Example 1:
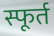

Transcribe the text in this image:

स्फूर्त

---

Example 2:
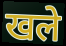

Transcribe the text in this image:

खले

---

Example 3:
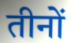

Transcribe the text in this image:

तीनों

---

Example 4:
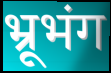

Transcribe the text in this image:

भ्रूभंग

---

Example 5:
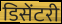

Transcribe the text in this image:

डिसेंटरी